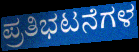
ಪ್ರತಿಭಟನೆಗಳ